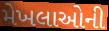
મેખલાઓની